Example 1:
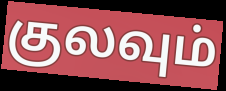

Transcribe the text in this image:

குலவும்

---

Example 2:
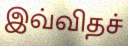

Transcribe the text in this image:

இவ்விதச்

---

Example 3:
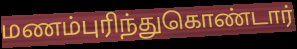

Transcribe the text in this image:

மணம்புரிந்துகொண்டார்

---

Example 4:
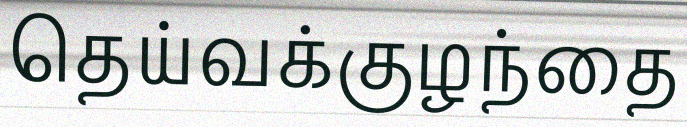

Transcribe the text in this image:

தெய்வக்குழந்தை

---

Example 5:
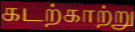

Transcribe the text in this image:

கடற்காற்று